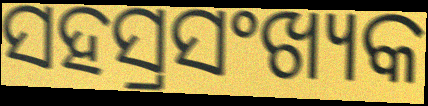
ସହସ୍ରସଂଖ୍ୟକ